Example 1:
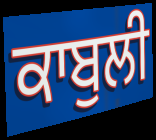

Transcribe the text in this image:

ਕਾਬੁਲੀ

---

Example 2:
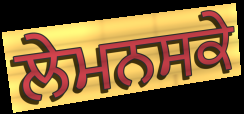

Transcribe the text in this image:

ਲੇਮਨਸਕੇ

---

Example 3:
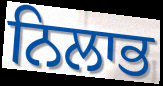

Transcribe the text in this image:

ਨਿਲਾਭ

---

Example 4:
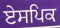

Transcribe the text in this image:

ਏਸਪਿਕ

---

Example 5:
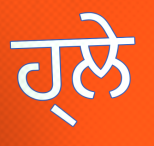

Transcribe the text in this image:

ਹ੍ਲੇ